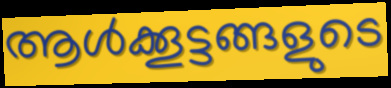
ആൾക്കൂട്ടങ്ങളുടെ